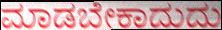
ಮಾಡಬೇಕಾದುದು